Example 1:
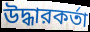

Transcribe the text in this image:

উদ্ধারকর্তা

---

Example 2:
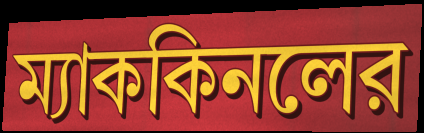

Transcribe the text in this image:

ম্যাককিনলের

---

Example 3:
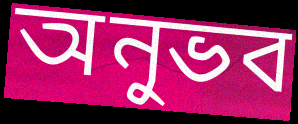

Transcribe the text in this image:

অনুভব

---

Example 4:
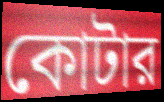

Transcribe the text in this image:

কোটার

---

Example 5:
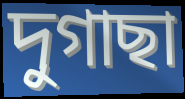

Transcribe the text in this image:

দুগাছা